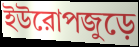
ইউরোপজুড়ে